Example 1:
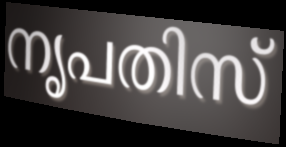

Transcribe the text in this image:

നൃപതിസ്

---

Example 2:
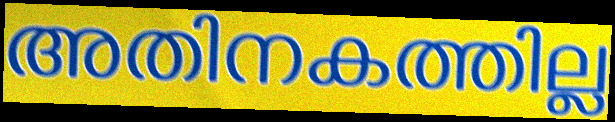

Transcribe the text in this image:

അതിനകത്തില്ല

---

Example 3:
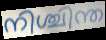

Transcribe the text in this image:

നിശ്ചിന്ത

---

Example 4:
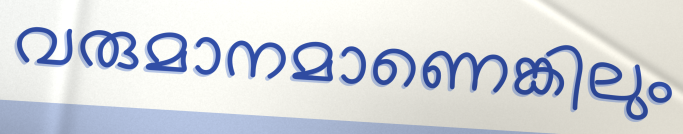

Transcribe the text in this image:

വരുമാനമാണെങ്കിലും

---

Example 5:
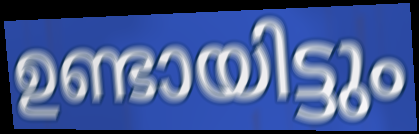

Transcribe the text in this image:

ഉണ്ടായിട്ടും